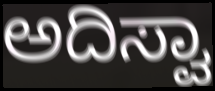
ಅದಿಸ್ವಾ